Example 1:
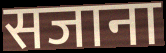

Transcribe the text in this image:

सजाना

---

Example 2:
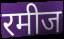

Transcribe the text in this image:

रमीज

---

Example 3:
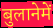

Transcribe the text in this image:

बुलानेमें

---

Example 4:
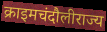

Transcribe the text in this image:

क्राइमचंदौलीराज्य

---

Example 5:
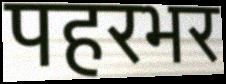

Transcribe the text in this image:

पहरभर